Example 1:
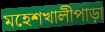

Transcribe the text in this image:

মহেশখালীপাড়া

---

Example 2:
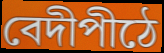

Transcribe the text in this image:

বেদীপীঠে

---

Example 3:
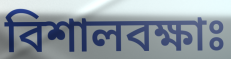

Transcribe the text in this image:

বিশালবক্ষাঃ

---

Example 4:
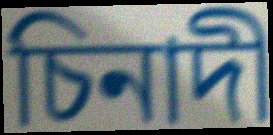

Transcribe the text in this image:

চিনাদী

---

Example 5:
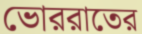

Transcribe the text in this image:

ভোররাতের